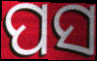
ପସ